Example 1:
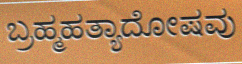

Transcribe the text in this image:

ಬ್ರಹ್ಮಹತ್ಯಾದೋಷವು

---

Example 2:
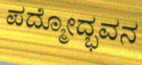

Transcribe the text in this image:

ಪದ್ಮೋದ್ಭವನ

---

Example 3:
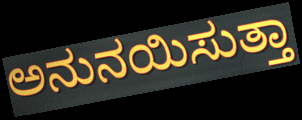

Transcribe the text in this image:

ಅನುನಯಿಸುತ್ತಾ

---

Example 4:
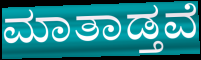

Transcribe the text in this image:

ಮಾತಾಡ್ತವೆ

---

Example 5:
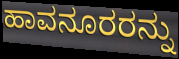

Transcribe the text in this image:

ಹಾವನೂರರನ್ನು